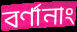
বর্ণানাং